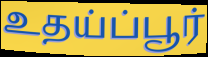
உதய்ப்பூர்